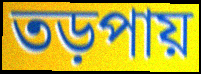
তড়পায়